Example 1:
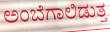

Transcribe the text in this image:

ಅಂಬೆಗಾಲಿಡುತ್ತ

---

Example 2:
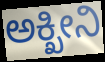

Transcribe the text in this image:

ಅಕ್ಖೀನಿ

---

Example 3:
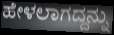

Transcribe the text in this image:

ಹೇಳಲಾಗದ್ದನ್ನು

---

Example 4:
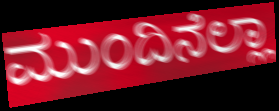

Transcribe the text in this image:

ಮುಂದಿನೆಲ್ಲಾ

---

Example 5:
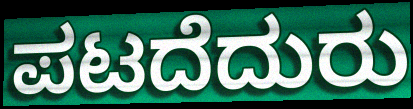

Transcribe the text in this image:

ಪಟದೆದುರು